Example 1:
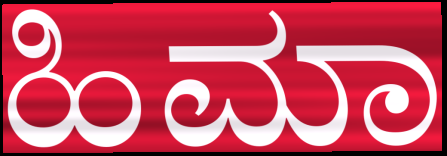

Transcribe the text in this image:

ಹಿಮಾ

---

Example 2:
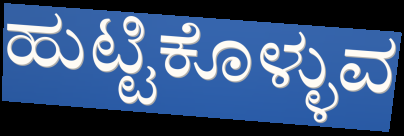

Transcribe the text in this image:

ಹುಟ್ಟಿಕೊಳ್ಳುವ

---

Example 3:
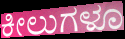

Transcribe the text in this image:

ಕೀಲುಗಳೂ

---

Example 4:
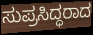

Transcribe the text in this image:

ಸುಪ್ರಸಿದ್ಧರಾದ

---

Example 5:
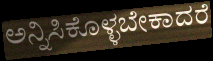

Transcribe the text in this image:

ಅನ್ನಿಸಿಕೊಳ್ಳಬೇಕಾದರೆ